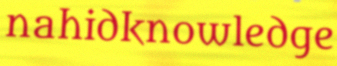
nahidknowledge